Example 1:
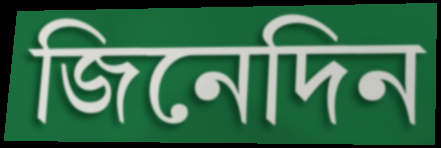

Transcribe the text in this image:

জিনেদিন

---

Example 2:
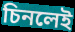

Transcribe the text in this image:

চিনলেই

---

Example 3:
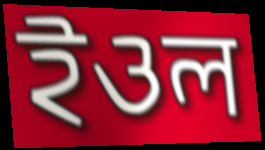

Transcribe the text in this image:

ইওল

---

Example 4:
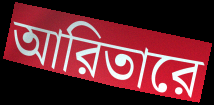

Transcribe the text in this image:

আরিতারে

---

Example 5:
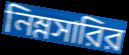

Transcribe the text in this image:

নিম্নসারির